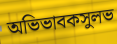
অভিভাবকসুলভ